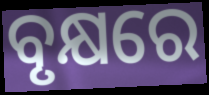
ବୃକ୍ଷରେ